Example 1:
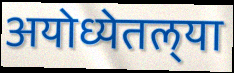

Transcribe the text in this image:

अयोध्येतल्या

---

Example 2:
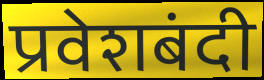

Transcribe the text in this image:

प्रवेशबंदी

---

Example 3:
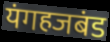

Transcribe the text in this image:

यंगहजबंड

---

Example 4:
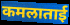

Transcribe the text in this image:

कमलाताई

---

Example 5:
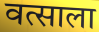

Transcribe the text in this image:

वत्साला